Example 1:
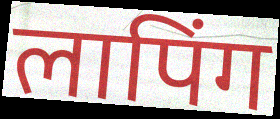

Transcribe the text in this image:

लापिंग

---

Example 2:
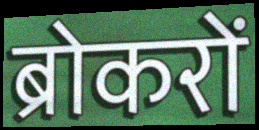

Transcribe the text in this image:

ब्रोकरों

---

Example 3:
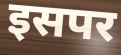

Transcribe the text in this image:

इसपर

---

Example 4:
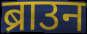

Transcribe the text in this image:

ब्राउन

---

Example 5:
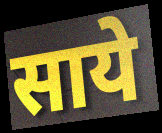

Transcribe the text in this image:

साये